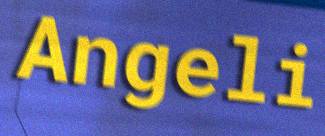
Angeli